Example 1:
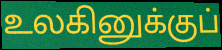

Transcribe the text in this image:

உலகினுக்குப்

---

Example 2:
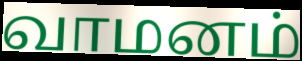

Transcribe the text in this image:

வாமனம்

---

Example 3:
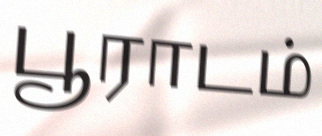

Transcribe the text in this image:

பூராடம்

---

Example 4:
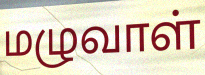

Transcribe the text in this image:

மழுவாள்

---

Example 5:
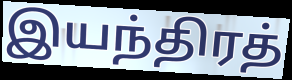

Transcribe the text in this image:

இயந்திரத்